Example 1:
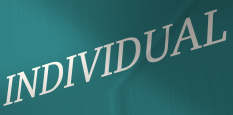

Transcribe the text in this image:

INDIVIDUAL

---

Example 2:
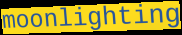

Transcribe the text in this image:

moonlighting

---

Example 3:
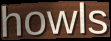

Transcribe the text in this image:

howls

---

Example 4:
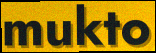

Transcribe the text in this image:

mukto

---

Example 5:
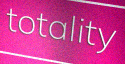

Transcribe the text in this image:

totality